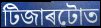
টিজাৰটোত